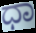
ಧಾ